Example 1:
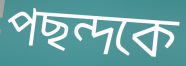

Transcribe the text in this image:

পছন্দকে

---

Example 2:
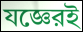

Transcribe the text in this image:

যজ্ঞেরই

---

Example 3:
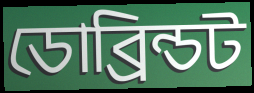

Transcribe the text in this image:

ডোব্রিন্ডট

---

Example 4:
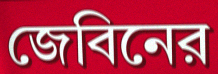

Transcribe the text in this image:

জেবিনের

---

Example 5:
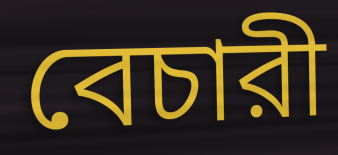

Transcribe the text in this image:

বেচারী